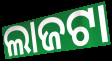
ଲାଜଟା